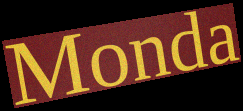
Monda